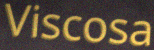
Viscosa